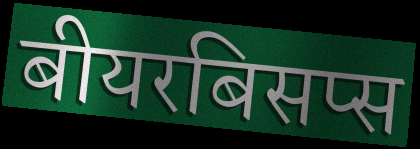
बीयरबिसप्स